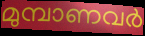
മുമ്പാണവർ